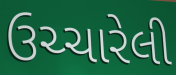
ઉચ્ચારેલી